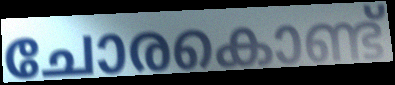
ചോരകൊണ്ട്